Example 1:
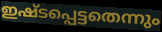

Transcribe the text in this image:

ഇഷ്ടപ്പെട്ടതെന്നും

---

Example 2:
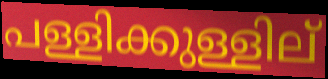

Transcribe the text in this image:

പള്ളിക്കുള്ളില്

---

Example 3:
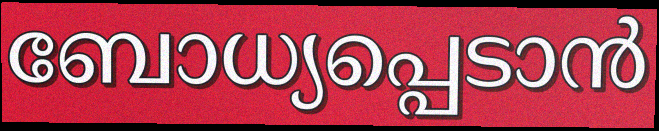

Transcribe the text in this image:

ബോധ്യപ്പെടാൻ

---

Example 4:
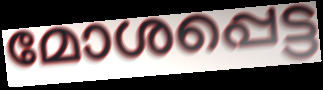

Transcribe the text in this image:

മോശപ്പെട്ട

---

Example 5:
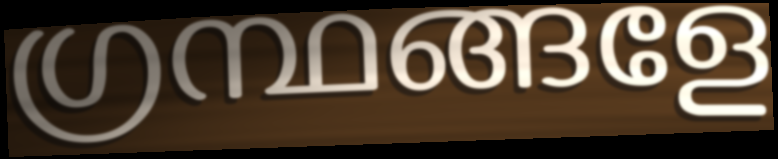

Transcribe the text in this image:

ഗ്രന്ഥങ്ങളേ